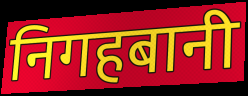
निगहबानी